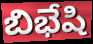
బిభేషి